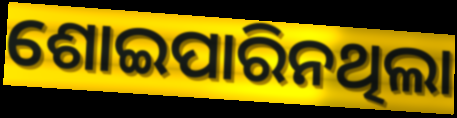
ଶୋଇପାରିନଥିଲା